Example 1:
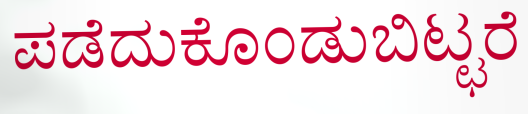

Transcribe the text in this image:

ಪಡೆದುಕೊಂಡುಬಿಟ್ಟರೆ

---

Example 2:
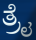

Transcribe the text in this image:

ತ್ರೈ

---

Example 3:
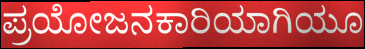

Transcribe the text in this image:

ಪ್ರಯೋಜನಕಾರಿಯಾಗಿಯೂ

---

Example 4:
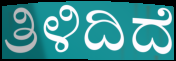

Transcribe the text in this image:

ತಿಳಿದಿದೆ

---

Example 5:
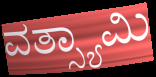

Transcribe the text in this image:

ವತ್ಸ್ಯಾಮಿ